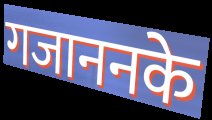
गजाननके